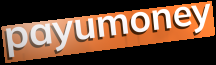
payumoney